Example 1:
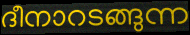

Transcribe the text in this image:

ദീനാറടങ്ങുന്ന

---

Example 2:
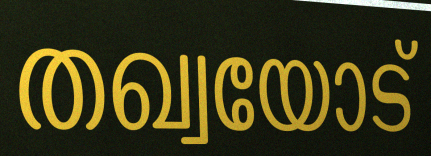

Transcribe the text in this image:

തഖ്വയോട്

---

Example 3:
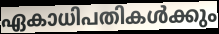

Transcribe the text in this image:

ഏകാധിപതികൾക്കും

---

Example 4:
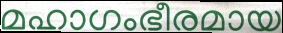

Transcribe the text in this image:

മഹാഗംഭീരമായ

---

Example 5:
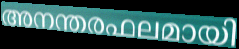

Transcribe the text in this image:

അനന്തരഫലമായി